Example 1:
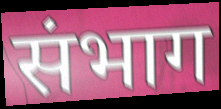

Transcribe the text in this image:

संभाग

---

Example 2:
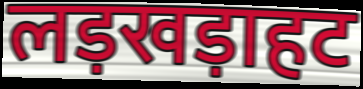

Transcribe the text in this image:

लड़खड़ाहट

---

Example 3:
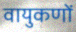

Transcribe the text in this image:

वायुकणों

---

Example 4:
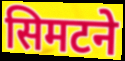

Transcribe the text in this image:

सिमटने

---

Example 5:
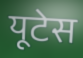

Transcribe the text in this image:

यूटेस